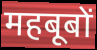
महबूबों